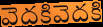
వెదకివెదకి